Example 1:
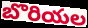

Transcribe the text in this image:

బొరియల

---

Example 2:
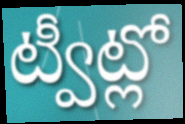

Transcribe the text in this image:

ట్వీట్లో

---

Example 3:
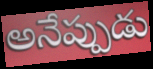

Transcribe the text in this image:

అనేప్పుడు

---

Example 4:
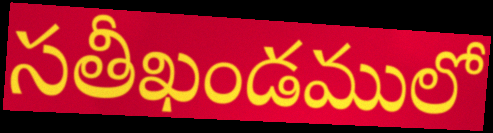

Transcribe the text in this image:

సతీఖండములో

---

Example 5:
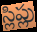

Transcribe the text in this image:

స్లిప్లు